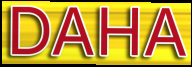
DAHA